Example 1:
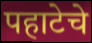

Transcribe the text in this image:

पहाटेचे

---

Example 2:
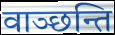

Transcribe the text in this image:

वाञ्छन्ति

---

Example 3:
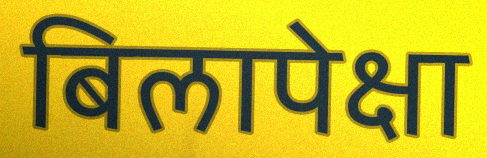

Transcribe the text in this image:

बिलापेक्षा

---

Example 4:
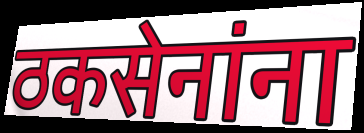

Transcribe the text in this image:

ठकसेनांना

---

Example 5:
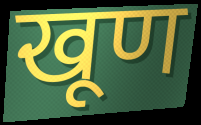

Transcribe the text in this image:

खूण